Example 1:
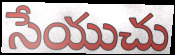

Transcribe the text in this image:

సేయుచు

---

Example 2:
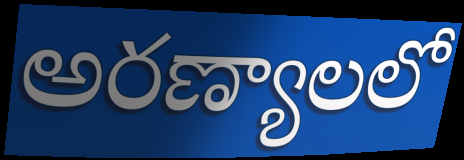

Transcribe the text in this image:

అరణ్యాలలో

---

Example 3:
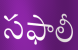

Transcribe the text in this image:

సఫాలీ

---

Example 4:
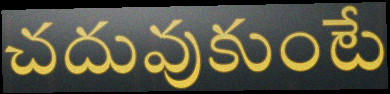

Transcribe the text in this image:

చదువుకుంటే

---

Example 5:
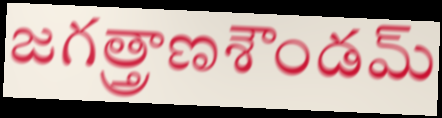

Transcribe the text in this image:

జగత్త్రాణశౌండమ్